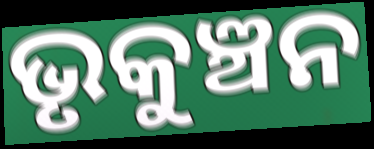
ଭୃକୁଞ୍ଚନ